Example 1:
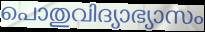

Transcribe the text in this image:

പൊതുവിദ്യാഭ്യാസം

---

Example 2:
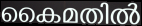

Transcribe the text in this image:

കൈമതിൽ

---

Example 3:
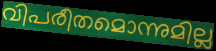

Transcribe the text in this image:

വിപരീതമൊന്നുമില്ല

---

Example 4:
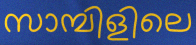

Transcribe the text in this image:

സാമ്പിളിലെ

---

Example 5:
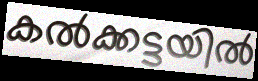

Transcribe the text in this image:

കൽക്കട്ടയിൽ